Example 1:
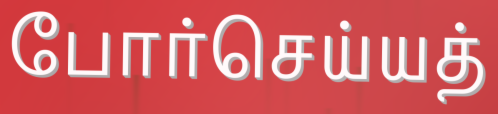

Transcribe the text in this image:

போர்செய்யத்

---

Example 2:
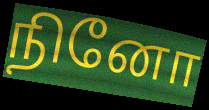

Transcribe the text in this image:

நினோ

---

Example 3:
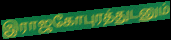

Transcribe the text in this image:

இராஜகோபுரத்துடனும்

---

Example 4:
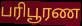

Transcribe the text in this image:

பரிபூரண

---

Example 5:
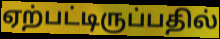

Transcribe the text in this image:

ஏற்பட்டிருப்பதில்